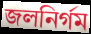
জলনির্গম